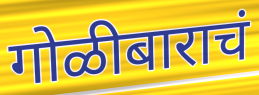
गोळीबाराचं